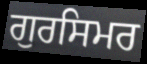
ਗੁਰਸਿਮਰ